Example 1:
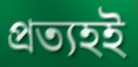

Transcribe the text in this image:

প্রত্যহই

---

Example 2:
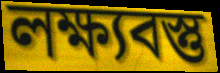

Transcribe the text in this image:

লক্ষ্যবস্তু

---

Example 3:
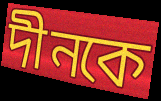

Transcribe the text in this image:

দীনকে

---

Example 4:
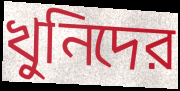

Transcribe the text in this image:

খুনিদের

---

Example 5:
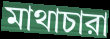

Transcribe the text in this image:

মাথাচারা